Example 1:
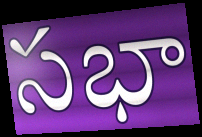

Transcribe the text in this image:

సభా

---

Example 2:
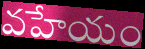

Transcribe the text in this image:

వహేయం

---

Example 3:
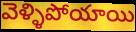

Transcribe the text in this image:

వెళ్ళిపోయాయి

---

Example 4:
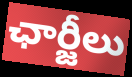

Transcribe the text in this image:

ఛార్జీలు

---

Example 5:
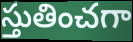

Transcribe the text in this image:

స్తుతించగా